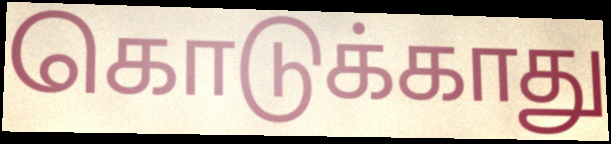
கொடுக்காது